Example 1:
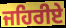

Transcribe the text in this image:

ਜਹਿਰੀਏ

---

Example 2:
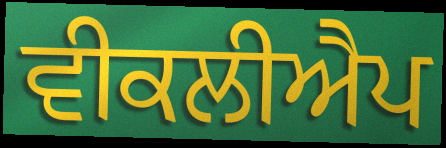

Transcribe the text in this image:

ਵੀਕਲੀਐਪ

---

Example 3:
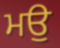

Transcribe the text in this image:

ਮਉ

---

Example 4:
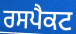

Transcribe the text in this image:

ਰਸਪੈਕਟ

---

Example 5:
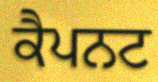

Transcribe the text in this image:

ਕੈਪਨਟ